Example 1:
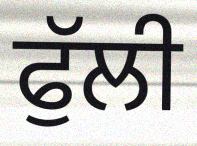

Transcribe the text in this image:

ਫੁੱਲੀ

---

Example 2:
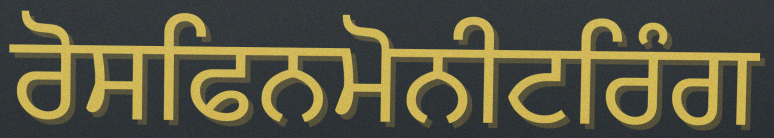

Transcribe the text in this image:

ਰੋਸਫਿਨਮੋਨੀਟਰਿੰਗ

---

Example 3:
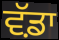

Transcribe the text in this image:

ਵ਼ੱਡਾ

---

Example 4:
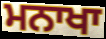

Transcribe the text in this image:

ਮਨਾਖਾ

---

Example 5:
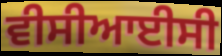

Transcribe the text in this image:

ਵੀਸੀਆਈਸੀ